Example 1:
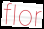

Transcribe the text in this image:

flor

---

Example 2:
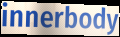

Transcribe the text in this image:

innerbody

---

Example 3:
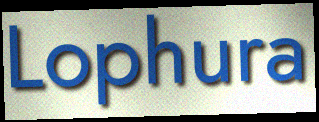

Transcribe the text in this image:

Lophura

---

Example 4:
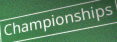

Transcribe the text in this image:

Championships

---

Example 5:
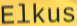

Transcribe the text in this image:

Elkus